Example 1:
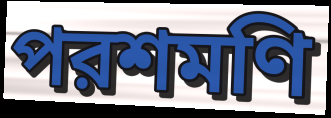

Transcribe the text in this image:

পরশমণি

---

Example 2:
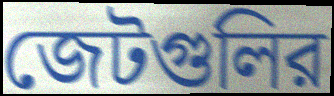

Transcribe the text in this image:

জেটগুলির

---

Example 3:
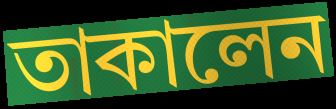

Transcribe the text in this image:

তাকালেন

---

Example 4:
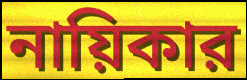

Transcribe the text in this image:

নায়িকার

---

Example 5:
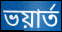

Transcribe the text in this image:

ভয়ার্ত